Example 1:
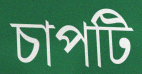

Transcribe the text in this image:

চাপটি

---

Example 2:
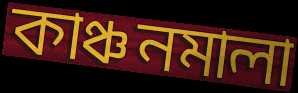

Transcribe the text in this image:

কাঞ্চনমালা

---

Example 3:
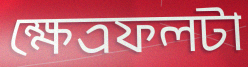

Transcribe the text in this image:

ক্ষেত্রফলটা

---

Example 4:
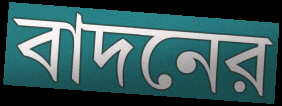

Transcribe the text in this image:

বাদনের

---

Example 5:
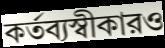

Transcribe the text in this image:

কর্তব্যস্বীকারও